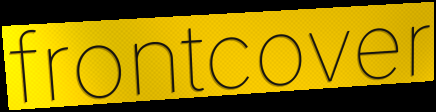
frontcover